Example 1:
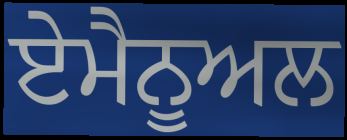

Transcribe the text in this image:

ਏਮੈਨੂਅਲ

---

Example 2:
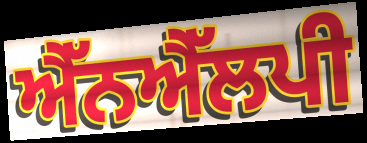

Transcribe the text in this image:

ਐੱਨਐੱਲਪੀ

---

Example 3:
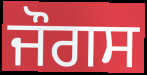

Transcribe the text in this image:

ਜੌਗਸ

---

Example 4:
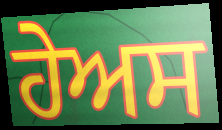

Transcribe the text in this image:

ਹੇਅਸ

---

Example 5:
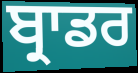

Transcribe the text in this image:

ਬ੍ਰਾਡਰ